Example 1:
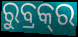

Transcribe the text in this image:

ରୁବ୍ରକ୍‍ର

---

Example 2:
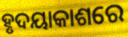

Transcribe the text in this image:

ହୃଦୟାକାଶରେ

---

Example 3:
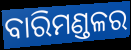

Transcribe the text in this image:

ବାରିମଣ୍ଡଳର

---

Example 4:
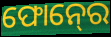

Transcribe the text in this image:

ଫୋନ୍‍ରେ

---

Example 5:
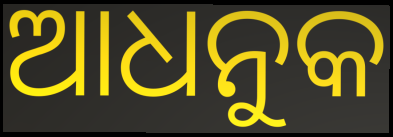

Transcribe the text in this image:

ଆଧନୁକ